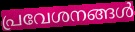
പ്രവേശനങ്ങൾ